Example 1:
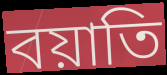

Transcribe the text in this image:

বয়াতি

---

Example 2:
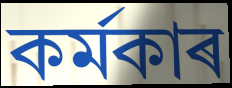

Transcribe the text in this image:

কৰ্মকাৰ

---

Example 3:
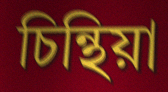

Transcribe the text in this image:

চিন্থিয়া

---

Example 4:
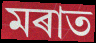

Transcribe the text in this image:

মৰাত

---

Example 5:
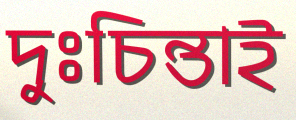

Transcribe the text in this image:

দুঃচিন্তাই